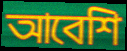
আবেশি